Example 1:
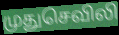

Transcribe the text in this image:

முதுசெவிலி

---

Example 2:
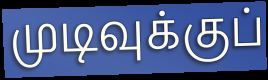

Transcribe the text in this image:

முடிவுக்குப்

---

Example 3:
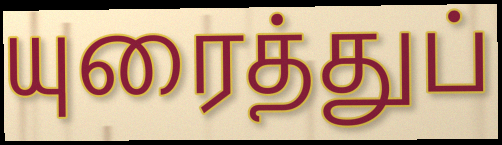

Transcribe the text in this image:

யுரைத்துப்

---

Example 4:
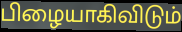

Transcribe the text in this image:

பிழையாகிவிடும்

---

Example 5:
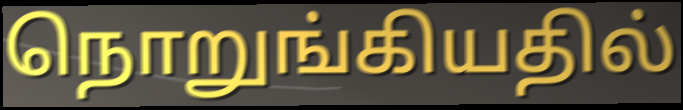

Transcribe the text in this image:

நொறுங்கியதில்